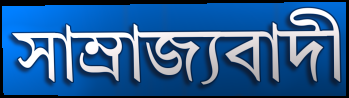
সাম্ৰাজ্যবাদী